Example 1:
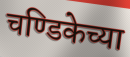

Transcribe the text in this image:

चण्डिकेच्या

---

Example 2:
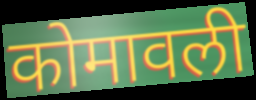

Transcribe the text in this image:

कोमावली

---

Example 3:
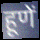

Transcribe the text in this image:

हूणें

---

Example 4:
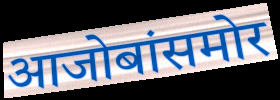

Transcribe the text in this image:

आजोबांसमोर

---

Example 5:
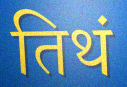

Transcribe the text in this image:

तिथं